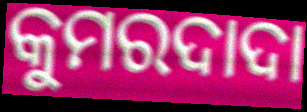
କୁମରଦାଦା